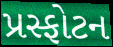
પ્રસ્ફોટન